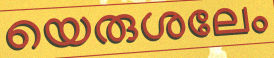
യെരുശലേം